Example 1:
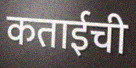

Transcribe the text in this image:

कताईची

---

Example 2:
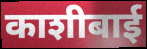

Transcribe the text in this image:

काशीबाई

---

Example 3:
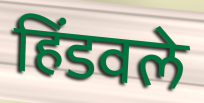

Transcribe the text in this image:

हिंडवले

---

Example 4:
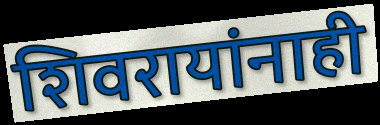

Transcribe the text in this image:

शिवरायांनाही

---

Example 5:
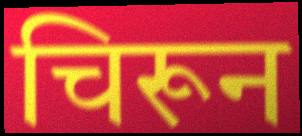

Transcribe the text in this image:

चिरून